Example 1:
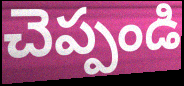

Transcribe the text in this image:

చెప్పండి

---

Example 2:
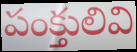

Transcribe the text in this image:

పంక్తులివి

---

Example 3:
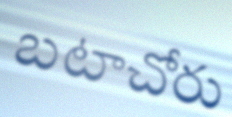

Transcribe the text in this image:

బటాచోరు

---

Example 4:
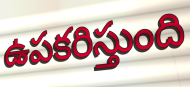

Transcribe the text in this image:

ఉపకరిస్తుంది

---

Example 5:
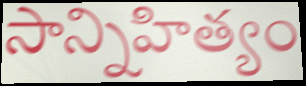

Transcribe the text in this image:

సాన్నిహిత్యం